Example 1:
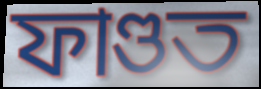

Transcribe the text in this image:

ফাণ্ডত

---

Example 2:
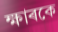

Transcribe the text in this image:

ক্ষাৰকে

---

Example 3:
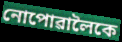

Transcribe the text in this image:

নোপোৱালৈকে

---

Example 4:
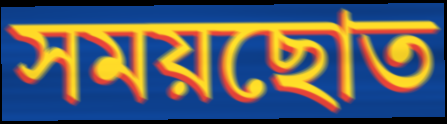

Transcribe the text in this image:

সময়ছোত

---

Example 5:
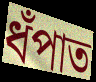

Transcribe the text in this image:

ধঁপাত